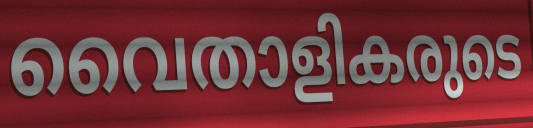
വൈതാളികരുടെ